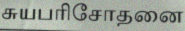
சுயபரிசோதனை